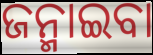
ଜନ୍ମାଇବା